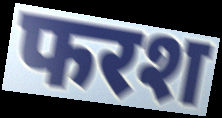
फरश